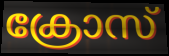
ക്രോസ്